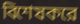
বিশেষকরে